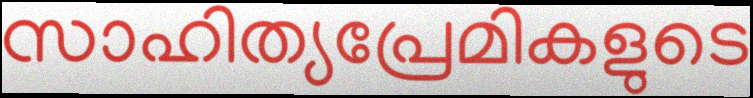
സാഹിത്യപ്രേമികളുടെ